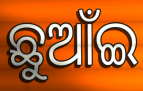
ଛୁଆଁଇ